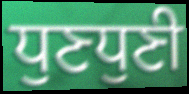
ਧੁਣਧੁਣੀ